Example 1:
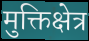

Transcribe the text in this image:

मुक्तिक्षेत्र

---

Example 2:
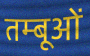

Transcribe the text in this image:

तम्बूओं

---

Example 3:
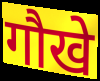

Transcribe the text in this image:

गौखे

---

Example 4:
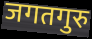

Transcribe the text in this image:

जगतगुरु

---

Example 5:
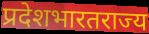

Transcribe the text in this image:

प्रदेशभारतराज्य